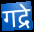
गद्रे